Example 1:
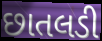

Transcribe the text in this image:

છાતલડી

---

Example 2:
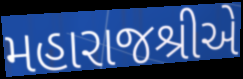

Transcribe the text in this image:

મહારાજશ્રીએ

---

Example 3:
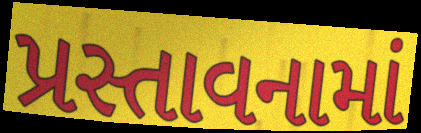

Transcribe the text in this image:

પ્રસ્તાવનામાં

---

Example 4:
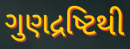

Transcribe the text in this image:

ગુણદ્રષ્ટિથી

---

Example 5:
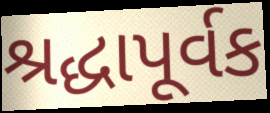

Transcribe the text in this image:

શ્રદ્ધાપૂર્વક